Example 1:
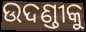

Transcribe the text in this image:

ଉଦଣ୍ଡୀକୁ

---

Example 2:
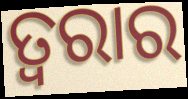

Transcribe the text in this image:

ତ୍ୱରାର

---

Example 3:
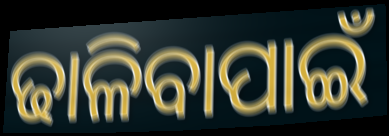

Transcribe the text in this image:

ଢାଳିବାପାଇଁ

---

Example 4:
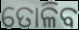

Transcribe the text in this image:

ତୋଳିବ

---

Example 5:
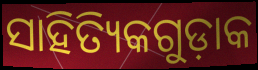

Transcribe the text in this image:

ସାହିତ୍ୟିକଗୁଡ଼ାକ